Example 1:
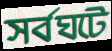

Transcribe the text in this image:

সর্বঘটে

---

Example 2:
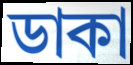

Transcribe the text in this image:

ডাকা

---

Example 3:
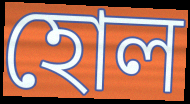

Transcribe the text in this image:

হোল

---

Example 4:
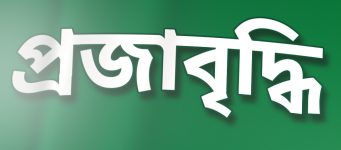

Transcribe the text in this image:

প্রজাবৃদ্ধি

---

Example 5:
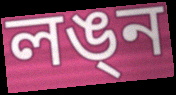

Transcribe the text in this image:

লঙ্ন